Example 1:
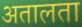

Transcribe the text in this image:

अतालता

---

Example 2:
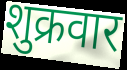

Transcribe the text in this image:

शुक्रवार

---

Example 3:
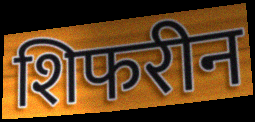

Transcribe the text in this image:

शिफरीन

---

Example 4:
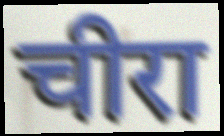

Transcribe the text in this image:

चीरा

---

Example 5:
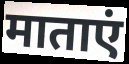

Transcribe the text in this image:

माताएं